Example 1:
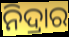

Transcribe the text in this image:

ନିଦ୍ରାର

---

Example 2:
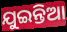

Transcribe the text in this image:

ଯୁଇନ୍ତିଆ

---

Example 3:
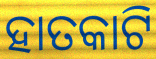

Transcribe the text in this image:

ହାତକାଟି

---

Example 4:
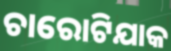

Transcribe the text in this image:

ଚାରୋଟିଯାକ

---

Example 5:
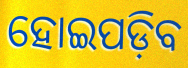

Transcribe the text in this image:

ହୋଇପଡ଼ିବ